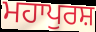
ਮਹਾਪੁਰਸ਼